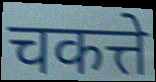
चकत्ते